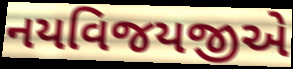
નયવિજયજીએ